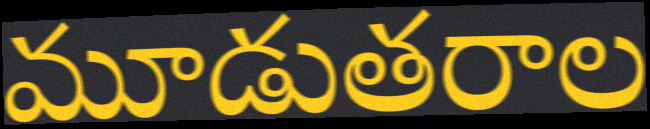
మూడుతరాల